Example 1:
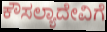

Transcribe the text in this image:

ಕೌಸಲ್ಯಾದೇವಿಗೆ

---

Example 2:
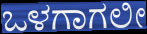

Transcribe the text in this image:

ಒಳಗಾಗಲೀ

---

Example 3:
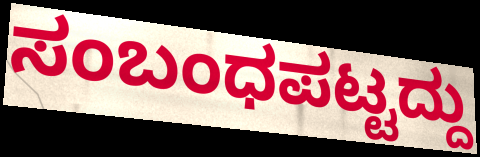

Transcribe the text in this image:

ಸಂಬಂಧಪಟ್ಟದ್ದು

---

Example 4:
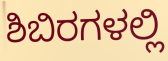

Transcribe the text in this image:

ಶಿಬಿರಗಳಲ್ಲಿ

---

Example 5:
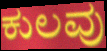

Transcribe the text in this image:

ಕುಲವು